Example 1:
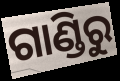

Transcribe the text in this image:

ଗାଣ୍ଡିରୁ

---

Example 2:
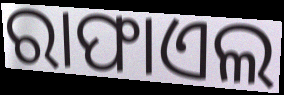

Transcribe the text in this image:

ରାଫାଏଲ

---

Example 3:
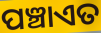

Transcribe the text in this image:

ପଞ୍ଚାଏତ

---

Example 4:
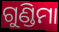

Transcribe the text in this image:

ଗୁଣ୍ଡିମା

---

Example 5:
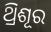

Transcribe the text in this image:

ଥ୍ରିଶୂର